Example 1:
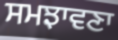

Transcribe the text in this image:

ਸਮਝਾਵਣਾ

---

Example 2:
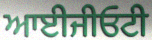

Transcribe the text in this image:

ਆਈਜੀਓਟੀ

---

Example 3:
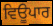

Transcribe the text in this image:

ਵਿਊਪਾਰ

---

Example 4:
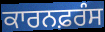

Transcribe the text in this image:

ਕਾਰਨਫ਼ਰੰਸ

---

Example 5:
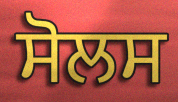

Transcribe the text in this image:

ਸੋਲਸ